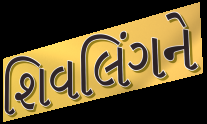
શિવલિંગને